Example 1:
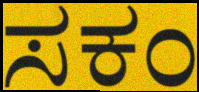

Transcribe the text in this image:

ಸಕಂ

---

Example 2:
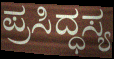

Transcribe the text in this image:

ಪ್ರಸಿದ್ಧಸ್ಯ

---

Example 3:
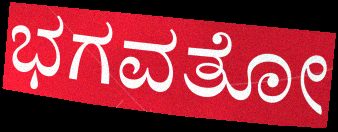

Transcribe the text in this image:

ಭಗವತೋ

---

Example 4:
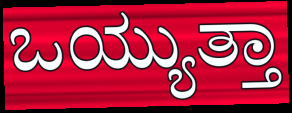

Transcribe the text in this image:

ಒಯ್ಯುತ್ತಾ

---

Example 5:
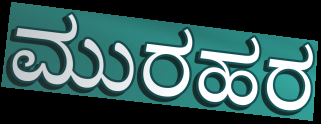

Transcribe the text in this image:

ಮುರಹರ